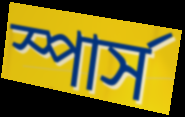
স্পার্স